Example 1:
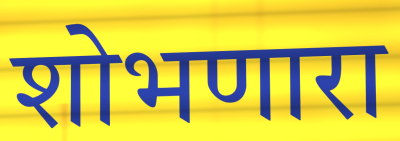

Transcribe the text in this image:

शोभणारा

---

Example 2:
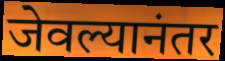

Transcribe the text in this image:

जेवल्यानंतर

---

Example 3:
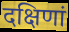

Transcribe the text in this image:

दक्षिणां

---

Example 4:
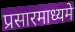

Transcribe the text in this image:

प्रसारमाध्यमे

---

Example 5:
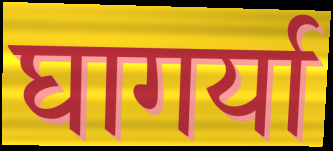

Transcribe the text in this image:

घागर्या